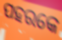
ପହରକେ